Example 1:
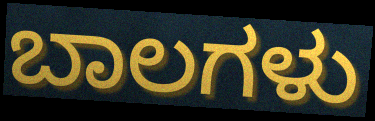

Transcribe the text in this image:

ಬಾಲಗಳು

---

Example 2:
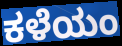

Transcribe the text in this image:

ಕಳೆಯಂ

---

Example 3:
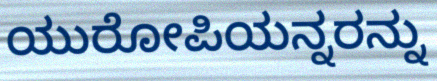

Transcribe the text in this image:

ಯುರೋಪಿಯನ್ನರನ್ನು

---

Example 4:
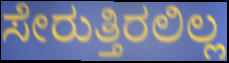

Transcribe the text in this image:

ಸೇರುತ್ತಿರಲಿಲ್ಲ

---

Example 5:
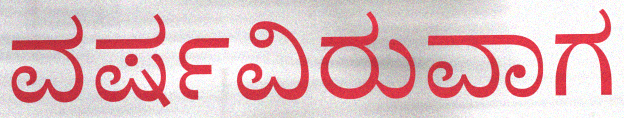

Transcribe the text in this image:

ವರ್ಷವಿರುವಾಗ